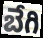
బేగి